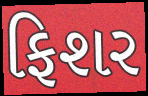
ફિશર